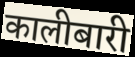
कालीबारी